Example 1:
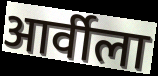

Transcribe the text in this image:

आर्वीला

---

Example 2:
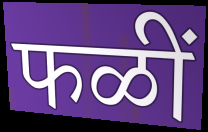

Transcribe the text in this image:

फळीं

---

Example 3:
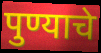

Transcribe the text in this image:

पुण्याचे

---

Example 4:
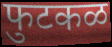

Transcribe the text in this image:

फुटकळ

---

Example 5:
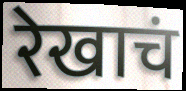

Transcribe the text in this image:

रेखाचं